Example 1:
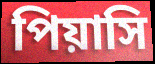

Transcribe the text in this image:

পিয়াসি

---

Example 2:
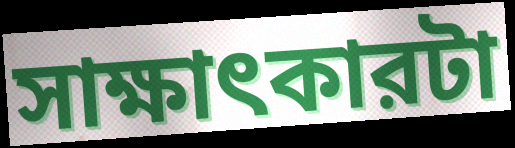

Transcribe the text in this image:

সাক্ষাৎকারটা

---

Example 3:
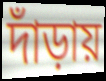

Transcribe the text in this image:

দাঁড়ায়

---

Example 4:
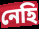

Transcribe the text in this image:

নেহি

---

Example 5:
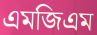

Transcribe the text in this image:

এমজিএম